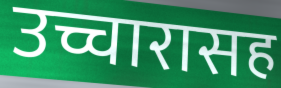
उच्चारासह